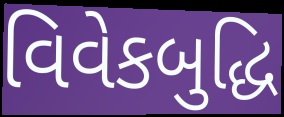
વિવેકબુદ્ધિ